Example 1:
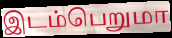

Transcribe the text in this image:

இடம்பெறுமா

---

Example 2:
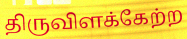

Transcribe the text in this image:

திருவிளக்கேற்ற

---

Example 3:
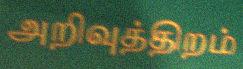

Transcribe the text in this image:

அறிவுத்திறம்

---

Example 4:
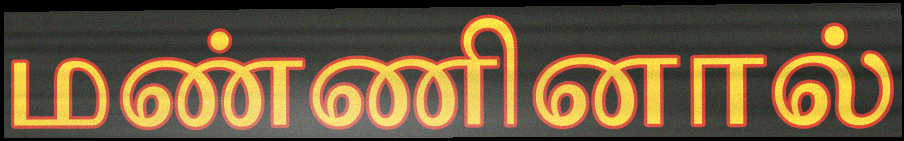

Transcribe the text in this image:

மண்ணினால்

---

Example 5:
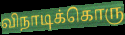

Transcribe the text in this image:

விநாடிக்கொரு